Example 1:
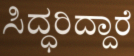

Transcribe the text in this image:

ಸಿದ್ಧರಿದ್ದಾರೆ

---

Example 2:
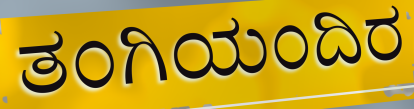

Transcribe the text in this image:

ತಂಗಿಯಂದಿರ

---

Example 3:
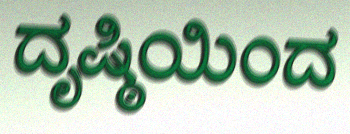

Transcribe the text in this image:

ದೃಷ್ಠಿಯಿಂದ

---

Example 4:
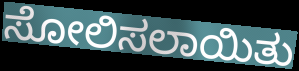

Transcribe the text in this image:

ಸೋಲಿಸಲಾಯಿತು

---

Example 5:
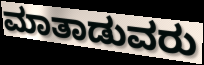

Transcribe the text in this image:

ಮಾತಾಡುವರು